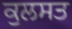
ਕੁਲਸਤ